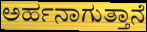
ಅರ್ಹನಾಗುತ್ತಾನೆ